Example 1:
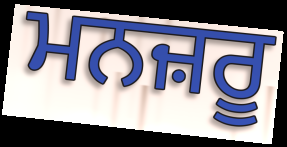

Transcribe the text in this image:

ਮਨਜ਼ਰੂ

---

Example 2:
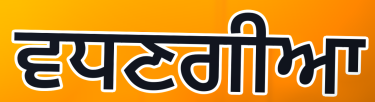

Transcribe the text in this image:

ਵਧਣਗੀਆ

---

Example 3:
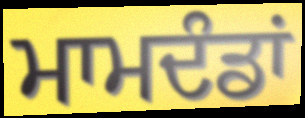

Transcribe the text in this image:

ਮਾਮਦੰਡਾਂ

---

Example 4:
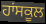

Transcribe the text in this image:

ਹਾਂਸਕੂਲ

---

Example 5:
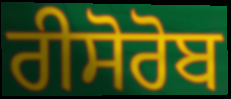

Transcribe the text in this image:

ਰੀਸੋਰੋਬ